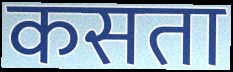
कसता